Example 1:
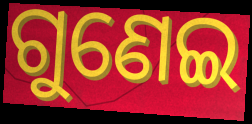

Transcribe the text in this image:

ଗୁଣେଇ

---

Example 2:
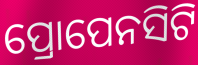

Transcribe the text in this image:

ପ୍ରୋପେନସିଟି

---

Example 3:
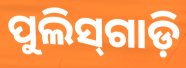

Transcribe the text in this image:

ପୁଲିସ୍‌ଗାଡ଼ି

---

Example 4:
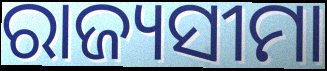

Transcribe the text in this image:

ରାଜ୍ୟସୀମା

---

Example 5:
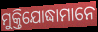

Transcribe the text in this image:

ମୁକ୍ତିଯୋଦ୍ଧାମାନେ